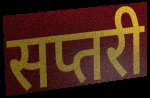
सप्तरी